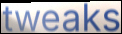
tweaks